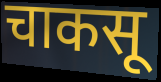
चाकसू